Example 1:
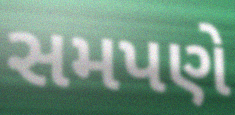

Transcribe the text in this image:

સમપણે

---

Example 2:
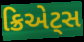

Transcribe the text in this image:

ક્રિએટ્સ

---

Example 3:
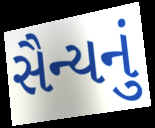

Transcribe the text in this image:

સૈન્યનું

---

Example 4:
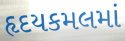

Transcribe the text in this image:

હૃદયકમલમાં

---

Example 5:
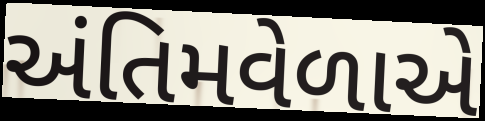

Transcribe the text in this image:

અંતિમવેળાએ